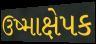
ઉષ્માક્ષેપક